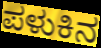
ಪಳುಕಿನ